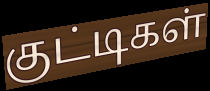
குட்டிகள்